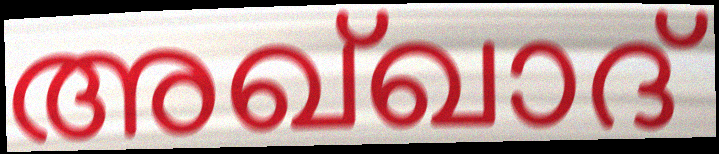
അഖ്ഖാദ്